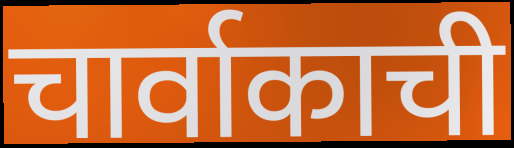
चार्वाकाची